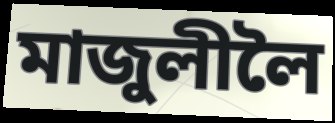
মাজুলীলৈ